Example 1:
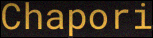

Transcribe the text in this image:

Chapori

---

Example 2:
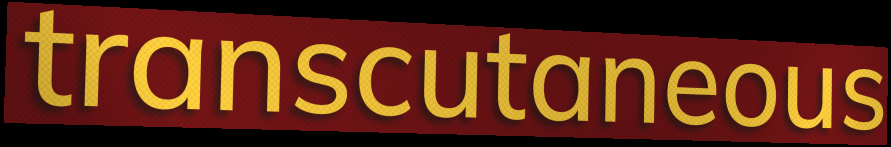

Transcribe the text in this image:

transcutaneous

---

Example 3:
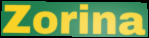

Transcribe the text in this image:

Zorina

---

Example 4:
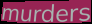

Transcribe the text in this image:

murders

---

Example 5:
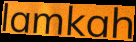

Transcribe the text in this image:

lamkah